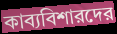
কাব্যবিশারদের